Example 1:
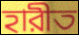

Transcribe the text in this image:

হারীত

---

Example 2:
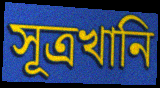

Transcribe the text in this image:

সূত্রখানি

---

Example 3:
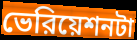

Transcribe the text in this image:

ভেরিয়েশনটা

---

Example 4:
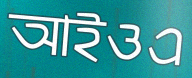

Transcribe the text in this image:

আইওএ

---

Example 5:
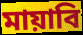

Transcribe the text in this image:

মায়াবি